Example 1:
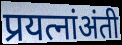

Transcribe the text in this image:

प्रयत्नांअंती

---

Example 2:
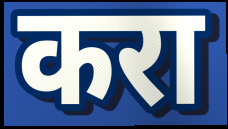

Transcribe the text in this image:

करा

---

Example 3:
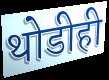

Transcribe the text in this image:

थोडीही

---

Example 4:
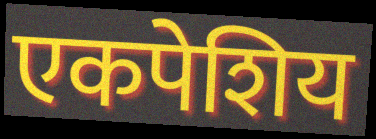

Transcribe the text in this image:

एकपेशिय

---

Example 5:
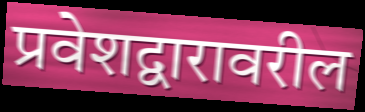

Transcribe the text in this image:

प्रवेशद्वारावरील